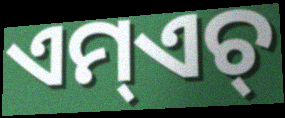
ଏମ୍ଏଚ୍